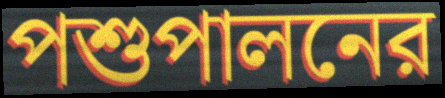
পশুপালনের